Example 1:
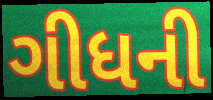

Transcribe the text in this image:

ગીધની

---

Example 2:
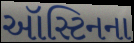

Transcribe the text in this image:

ઑસ્ટિનના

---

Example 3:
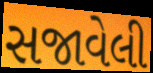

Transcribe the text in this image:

સજાવેલી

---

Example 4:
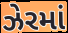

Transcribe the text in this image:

ઝેરમાં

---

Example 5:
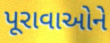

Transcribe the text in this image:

પૂરાવાઓને